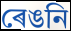
ৰেঙনি